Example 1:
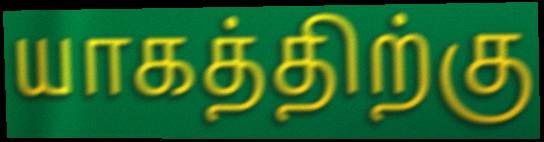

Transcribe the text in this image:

யாகத்திற்கு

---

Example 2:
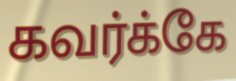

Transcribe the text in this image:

கவர்க்கே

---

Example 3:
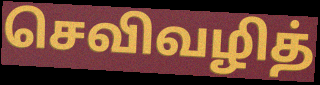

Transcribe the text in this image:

செவிவழித்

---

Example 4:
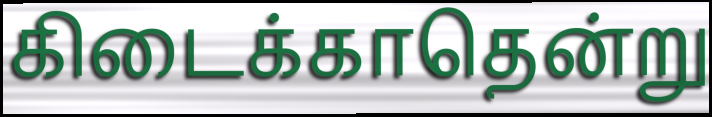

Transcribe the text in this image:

கிடைக்காதென்று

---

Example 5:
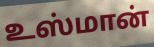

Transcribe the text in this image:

உஸ்மான்